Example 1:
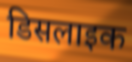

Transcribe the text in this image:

डिसलाइक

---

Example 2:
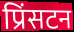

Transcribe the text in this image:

प्रिंसटन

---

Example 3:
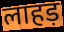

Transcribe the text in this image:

लाहड़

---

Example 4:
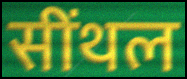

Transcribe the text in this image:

सींथल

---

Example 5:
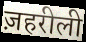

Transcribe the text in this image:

ज़हरीली